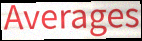
Averages